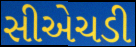
સીએચડી